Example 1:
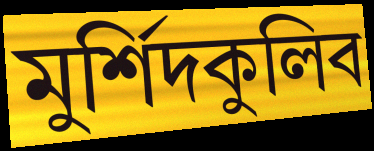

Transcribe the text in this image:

মুর্শিদকুলিব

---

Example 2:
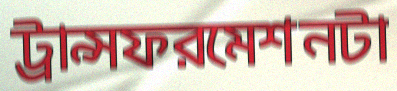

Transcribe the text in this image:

ট্রান্সফরমেশনটা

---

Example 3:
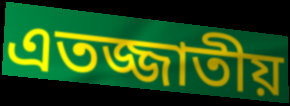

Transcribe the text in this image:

এতজ্জাতীয়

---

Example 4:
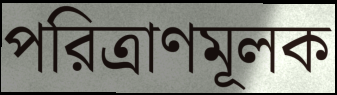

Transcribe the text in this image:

পরিত্রাণমূলক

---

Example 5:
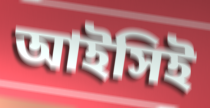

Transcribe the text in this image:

আইসিই